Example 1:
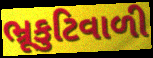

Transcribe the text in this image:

ભ્રૂકુટિવાળી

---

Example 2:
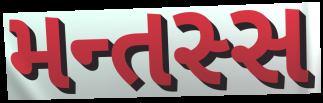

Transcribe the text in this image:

મન્તસ્સ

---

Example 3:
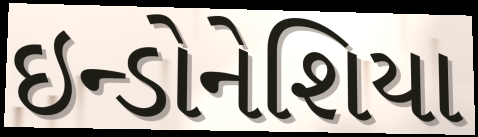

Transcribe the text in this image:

ઇન્ડોનેશિયા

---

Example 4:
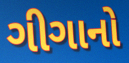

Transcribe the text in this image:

ગીગાનો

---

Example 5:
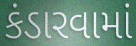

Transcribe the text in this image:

કંડારવામાં